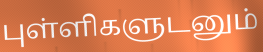
புள்ளிகளுடனும்